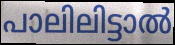
പാലിലിട്ടാൽ